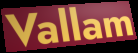
Vallam